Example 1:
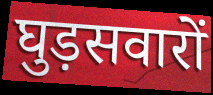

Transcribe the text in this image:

घुड़सवारों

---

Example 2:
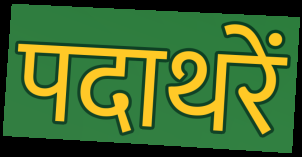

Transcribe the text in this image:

पदाथरें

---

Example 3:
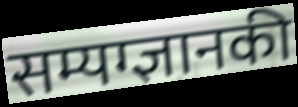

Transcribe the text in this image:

सम्यग्ज्ञानकी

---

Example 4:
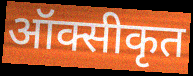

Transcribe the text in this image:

ऑक्सीकृत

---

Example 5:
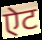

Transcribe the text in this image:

ऐट